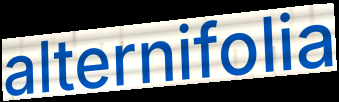
alternifolia